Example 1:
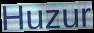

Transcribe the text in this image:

Huzur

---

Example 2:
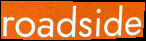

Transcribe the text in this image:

roadside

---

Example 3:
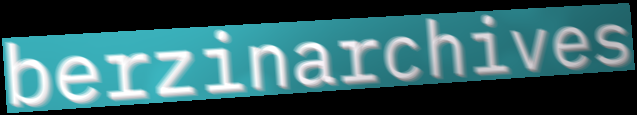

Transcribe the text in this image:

berzinarchives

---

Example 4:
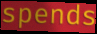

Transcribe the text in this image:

spends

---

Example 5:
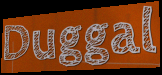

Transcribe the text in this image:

Duggal